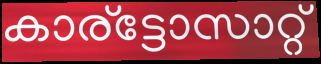
കാര്ട്ടോസാറ്റ്